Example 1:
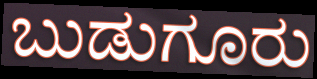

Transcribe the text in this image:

ಬುಡುಗೂರು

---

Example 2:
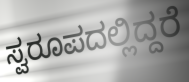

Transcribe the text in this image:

ಸ್ವರೂಪದಲ್ಲಿದ್ದರೆ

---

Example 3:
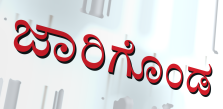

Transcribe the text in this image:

ಜಾರಿಗೊಂಡ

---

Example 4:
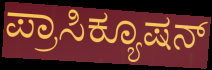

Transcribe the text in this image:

ಪ್ರಾಸಿಕ್ಯೂಷನ್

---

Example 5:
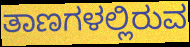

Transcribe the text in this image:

ತಾಣಗಳಲ್ಲಿರುವ